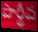
పార్థీవ